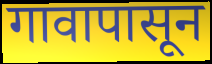
गावापासून